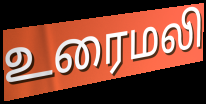
உரைமலி